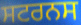
ਸਟਰਨਸ